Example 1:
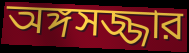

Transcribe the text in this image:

অঙ্গসজ্জার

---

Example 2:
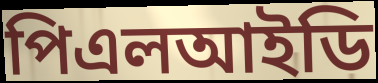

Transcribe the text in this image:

পিএলআইডি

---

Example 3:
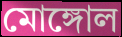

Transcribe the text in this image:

মোঙ্গোল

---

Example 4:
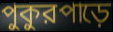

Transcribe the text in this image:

পুকুরপাড়ে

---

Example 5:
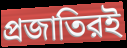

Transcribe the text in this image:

প্রজাতিরই